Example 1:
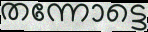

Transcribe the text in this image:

തന്നോട്ടെ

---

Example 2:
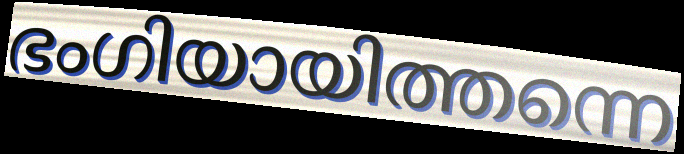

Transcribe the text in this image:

ഭംഗിയായിത്തന്നെ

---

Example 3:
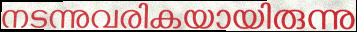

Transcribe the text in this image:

നടന്നുവരികയായിരുന്നു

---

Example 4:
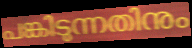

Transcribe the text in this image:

പങ്കിടുന്നതിനും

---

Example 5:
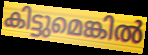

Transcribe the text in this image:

കിട്ടുമെങ്കിൽ